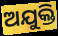
ଅଯୁକ୍ତି